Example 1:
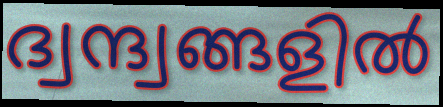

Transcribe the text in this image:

ദ്വന്ദ്വങ്ങളിൽ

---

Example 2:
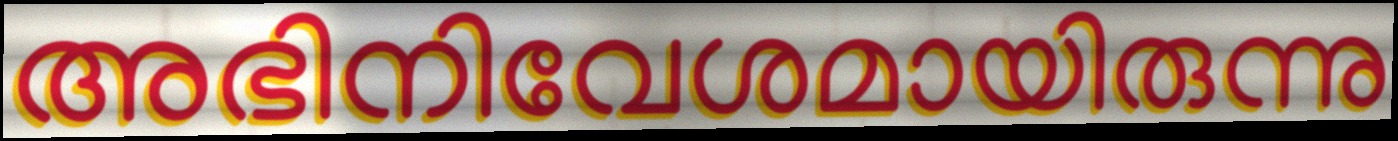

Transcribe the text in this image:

അഭിനിവേശമായിരുന്നു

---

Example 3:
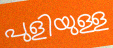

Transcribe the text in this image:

പുളിയുള്ള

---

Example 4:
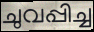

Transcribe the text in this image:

ചുവപ്പിച്ച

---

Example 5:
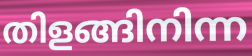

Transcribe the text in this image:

തിളങ്ങിനിന്ന